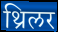
थ्रिलर